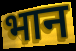
भान